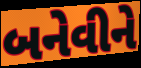
બનેવીને